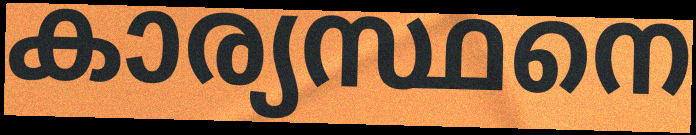
കാര്യസ്ഥനെ